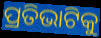
ପ୍ରତିଭାଟିକୁ